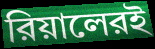
রিয়ালেরই